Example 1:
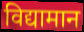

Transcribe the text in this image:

विद्यामान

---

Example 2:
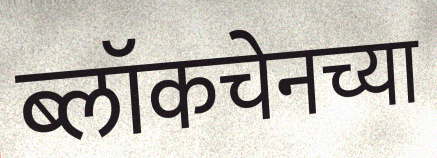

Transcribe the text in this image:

ब्लॉकचेनच्या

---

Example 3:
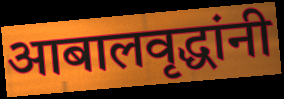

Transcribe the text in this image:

आबालवृद्धांनी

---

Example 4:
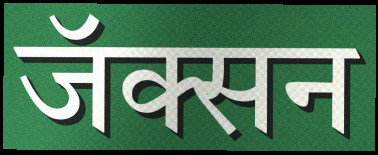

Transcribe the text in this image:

जॅक्सन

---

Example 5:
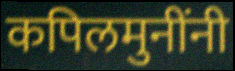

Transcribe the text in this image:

कपिलमुनींनी